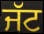
ਜੱਟ